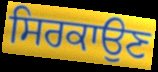
ਸਿਰਕਾਉਣ